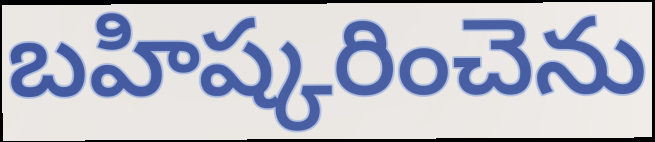
బహిష్కరించెను